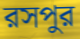
রসপুর